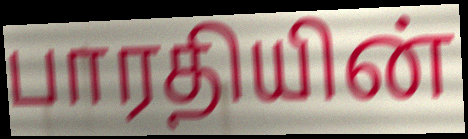
பாரதியின்